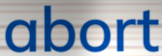
abort